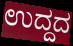
ಉದ್ದದ